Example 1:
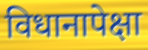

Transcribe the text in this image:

विधानापेक्षा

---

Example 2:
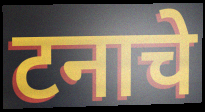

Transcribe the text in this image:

टनाचे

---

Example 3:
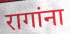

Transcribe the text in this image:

रागांना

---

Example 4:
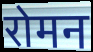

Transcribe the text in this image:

रोमन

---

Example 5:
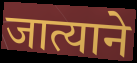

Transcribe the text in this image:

जात्याने